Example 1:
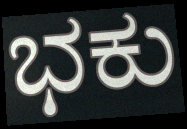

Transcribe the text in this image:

ಭಕು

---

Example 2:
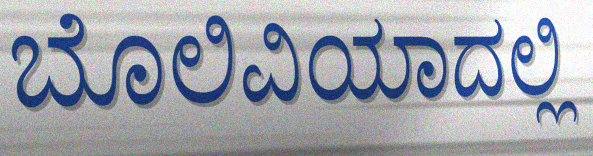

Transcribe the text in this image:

ಬೊಲಿವಿಯಾದಲ್ಲಿ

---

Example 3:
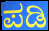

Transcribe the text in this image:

ಪಡಿ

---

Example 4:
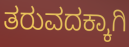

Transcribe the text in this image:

ತರುವದಕ್ಕಾಗಿ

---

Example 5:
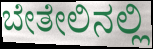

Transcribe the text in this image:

ಬೇತೇಲಿನಲ್ಲಿ